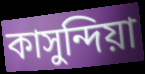
কাসুন্দিয়া